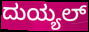
ದುಯ್ಯಲ್